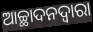
ଆଚ୍ଛାଦନଦ୍ୱାରା